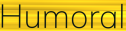
Humoral